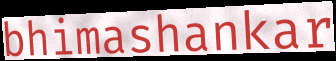
bhimashankar